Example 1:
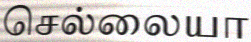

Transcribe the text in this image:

செல்லையா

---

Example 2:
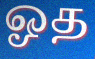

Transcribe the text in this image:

ஓத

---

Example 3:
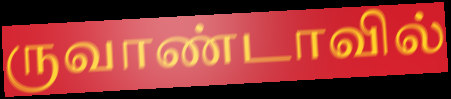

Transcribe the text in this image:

ருவாண்டாவில்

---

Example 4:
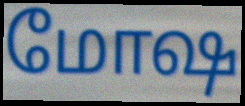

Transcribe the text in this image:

மோஷ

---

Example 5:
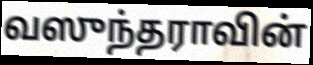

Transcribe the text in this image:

வஸுந்தராவின்